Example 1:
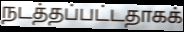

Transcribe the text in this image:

நடத்தப்பட்டதாகக்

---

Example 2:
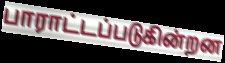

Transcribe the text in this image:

பாராட்டப்படுகின்றன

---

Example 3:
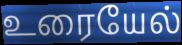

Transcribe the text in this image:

உரையேல்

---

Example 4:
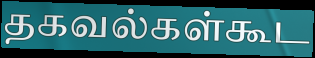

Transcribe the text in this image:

தகவல்கள்கூட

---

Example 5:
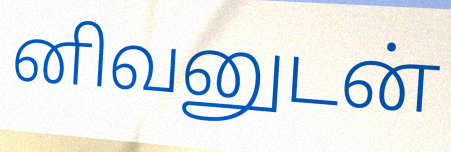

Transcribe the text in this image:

னிவனுடன்